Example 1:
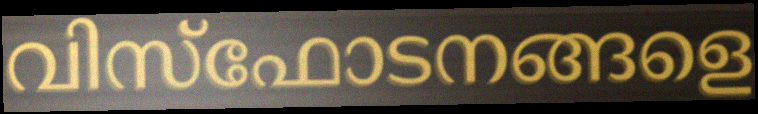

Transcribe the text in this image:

വിസ്ഫോടനങ്ങളെ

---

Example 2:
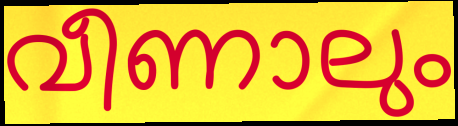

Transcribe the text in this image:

വീണാലും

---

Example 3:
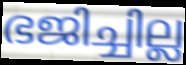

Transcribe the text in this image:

ഭജിച്ചില്ല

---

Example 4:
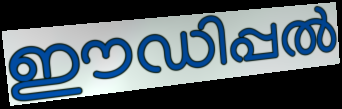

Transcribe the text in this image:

ഈഡിപ്പൽ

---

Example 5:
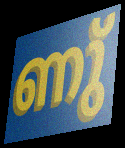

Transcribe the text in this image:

ണു്